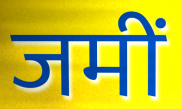
जमीं